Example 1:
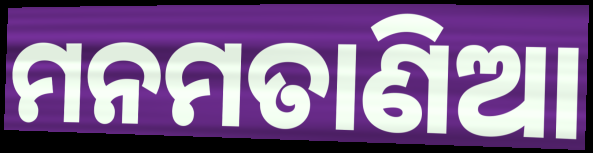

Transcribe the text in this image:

ମନମତାଣିଆ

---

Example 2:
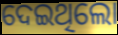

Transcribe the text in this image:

ଦେଇଥିଲୋ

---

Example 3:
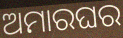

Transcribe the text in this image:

ଅମାରଘର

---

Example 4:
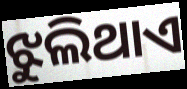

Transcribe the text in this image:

ଝୁଲିଥାଏ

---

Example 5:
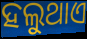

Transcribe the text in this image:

ହଲୁଥାଏ